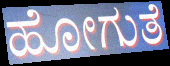
ಹೋಗುತೆ